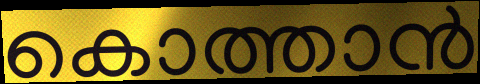
കൊത്താൻ